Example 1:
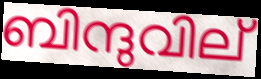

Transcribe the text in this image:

ബിന്ദുവില്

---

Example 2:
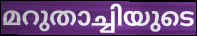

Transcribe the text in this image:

മറുതാച്ചിയുടെ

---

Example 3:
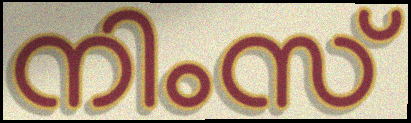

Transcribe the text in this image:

നിംസ്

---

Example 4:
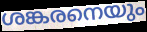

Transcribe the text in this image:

ശങ്കരനെയും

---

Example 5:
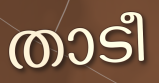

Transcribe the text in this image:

താടീ